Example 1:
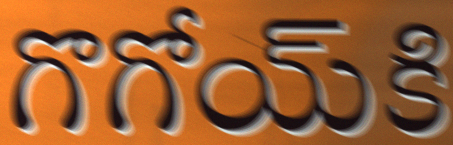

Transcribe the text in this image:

గొగోయ్‌కి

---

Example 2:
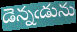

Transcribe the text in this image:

డెన్నఁడును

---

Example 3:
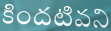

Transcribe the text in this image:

కిందటివని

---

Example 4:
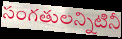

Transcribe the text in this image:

సంగతులన్నిటినీ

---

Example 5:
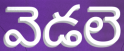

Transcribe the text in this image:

వెడలె